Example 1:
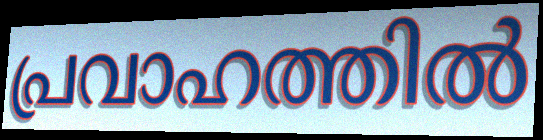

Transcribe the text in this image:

പ്രവാഹത്തിൽ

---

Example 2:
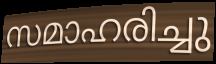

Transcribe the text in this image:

സമാഹരിച്ചു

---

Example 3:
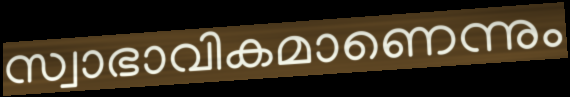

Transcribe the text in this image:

സ്വാഭാവികമാണെന്നും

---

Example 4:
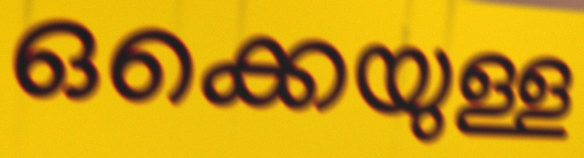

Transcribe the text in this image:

ഒക്കെയുള്ള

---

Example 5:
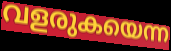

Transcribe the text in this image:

വളരുകയെന്ന